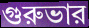
গুরুভার